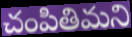
చంపితిమని